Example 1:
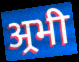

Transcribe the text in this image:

अ्रभी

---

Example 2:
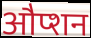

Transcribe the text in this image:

औप्शन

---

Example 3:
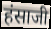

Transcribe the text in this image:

हंसाजी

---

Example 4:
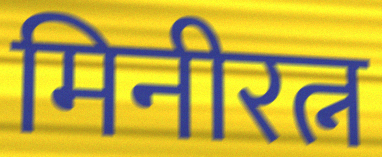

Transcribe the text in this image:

मिनीरत्न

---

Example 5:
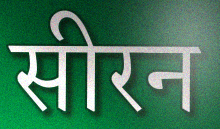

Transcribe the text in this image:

सीरन